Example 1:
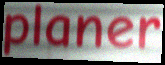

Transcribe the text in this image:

planer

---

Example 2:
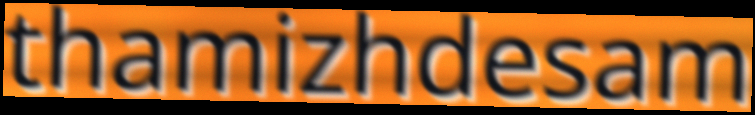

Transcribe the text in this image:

thamizhdesam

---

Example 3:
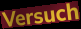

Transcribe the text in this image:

Versuch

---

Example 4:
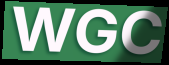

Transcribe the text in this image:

WGC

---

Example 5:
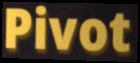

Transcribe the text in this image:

Pivot